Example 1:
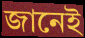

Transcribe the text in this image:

জানেই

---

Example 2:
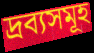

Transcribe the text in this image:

দ্ৰব্যসমূহ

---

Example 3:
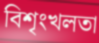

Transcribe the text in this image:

বিশৃংখলতা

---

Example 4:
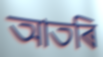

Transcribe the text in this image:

আতৰি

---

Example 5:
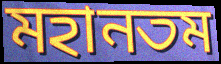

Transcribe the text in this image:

মহানতম